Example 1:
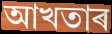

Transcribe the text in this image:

আখতাৰ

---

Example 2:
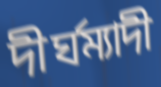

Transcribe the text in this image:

দীৰ্ঘম্যাদী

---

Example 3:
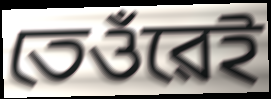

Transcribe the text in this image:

তেওঁৱেই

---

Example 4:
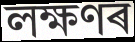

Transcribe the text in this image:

লক্ষণৰ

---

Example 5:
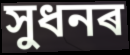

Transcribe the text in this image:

সুধনৰ